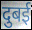
दुबई